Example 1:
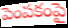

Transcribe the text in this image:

పెంపకంపై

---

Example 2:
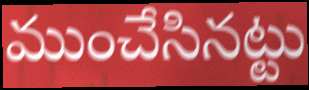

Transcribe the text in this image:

ముంచేసినట్టు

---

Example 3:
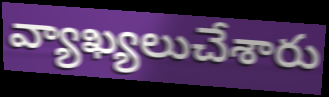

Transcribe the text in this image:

వ్యాఖ్యలుచేశారు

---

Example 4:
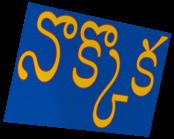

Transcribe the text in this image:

నొక్కొక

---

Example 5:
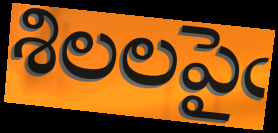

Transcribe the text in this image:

శిలలపైఁ